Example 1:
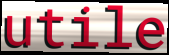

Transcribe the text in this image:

utile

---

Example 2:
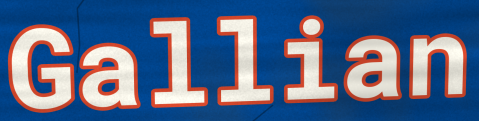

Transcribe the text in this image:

Gallian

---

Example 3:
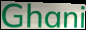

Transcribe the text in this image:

Ghani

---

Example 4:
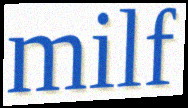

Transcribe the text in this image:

milf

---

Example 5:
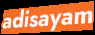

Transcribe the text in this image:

adisayam